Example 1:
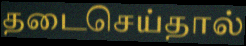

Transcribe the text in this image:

தடைசெய்தால்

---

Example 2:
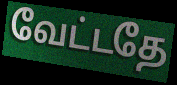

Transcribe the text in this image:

வேட்டதே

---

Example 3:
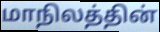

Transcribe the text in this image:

மாநிலத்தின்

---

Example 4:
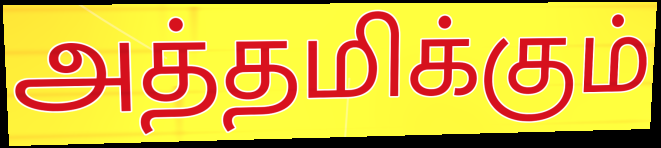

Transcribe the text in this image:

அத்தமிக்கும்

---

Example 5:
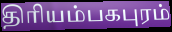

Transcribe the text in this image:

திரியம்பகபுரம்